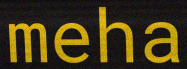
meha